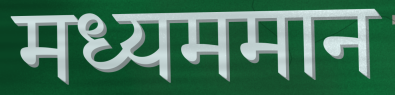
मध्यममान